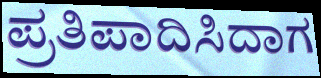
ಪ್ರತಿಪಾದಿಸಿದಾಗ